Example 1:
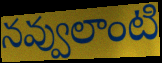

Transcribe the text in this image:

నవ్వులాంటి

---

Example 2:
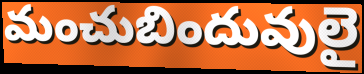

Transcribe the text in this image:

మంచుబిందువులై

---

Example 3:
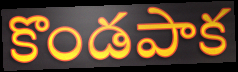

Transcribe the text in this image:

కొండపాక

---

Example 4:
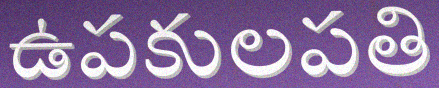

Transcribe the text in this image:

ఉపకులపతి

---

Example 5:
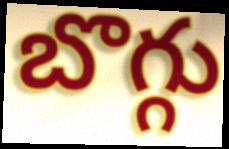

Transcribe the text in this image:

బొగ్గు